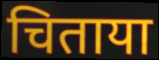
चिताया